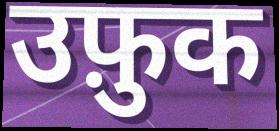
उफ़ुक